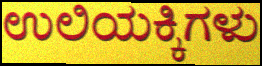
ಉಲಿಯಕ್ಕಿಗಳು